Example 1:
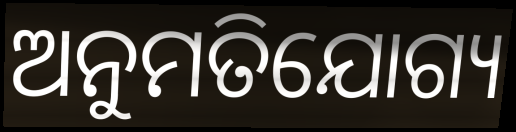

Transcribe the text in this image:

ଅନୁମତିଯୋଗ୍ୟ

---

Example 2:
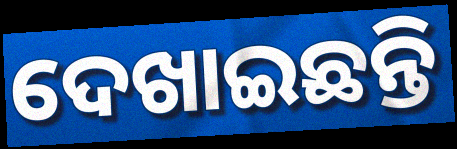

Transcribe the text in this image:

ଦେଖାଇଛନ୍ତି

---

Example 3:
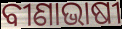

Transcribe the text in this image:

ବୀଣାଭାଷୀ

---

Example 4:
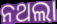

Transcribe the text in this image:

ନଥଲା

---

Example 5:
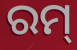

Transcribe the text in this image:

ରମ୍